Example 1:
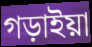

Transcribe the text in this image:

গড়াইয়া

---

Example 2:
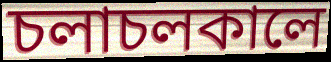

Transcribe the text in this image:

চলাচলকালে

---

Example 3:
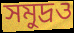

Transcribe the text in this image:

সমুদ্রও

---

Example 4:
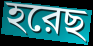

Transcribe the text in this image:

হরেছ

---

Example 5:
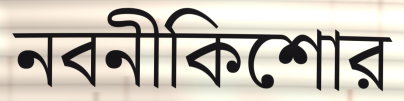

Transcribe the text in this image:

নবনীকিশোর